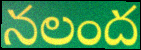
నలంద